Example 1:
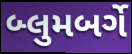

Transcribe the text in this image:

બ્લુમબર્ગે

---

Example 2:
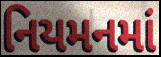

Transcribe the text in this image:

નિયમનમાં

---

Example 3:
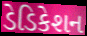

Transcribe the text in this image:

ડેડિકેશન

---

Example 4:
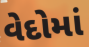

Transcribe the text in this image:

વેદોમાં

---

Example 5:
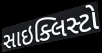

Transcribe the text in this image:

સાઇક્લિસ્ટો